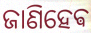
ଜାଣିହେଵ